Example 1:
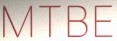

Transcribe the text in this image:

MTBE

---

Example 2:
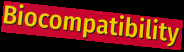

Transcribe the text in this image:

Biocompatibility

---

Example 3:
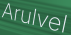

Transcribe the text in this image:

Arulvel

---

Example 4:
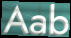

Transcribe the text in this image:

Aab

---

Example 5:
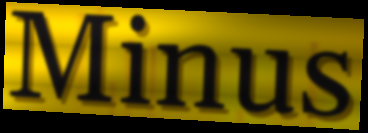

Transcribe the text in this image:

Minus